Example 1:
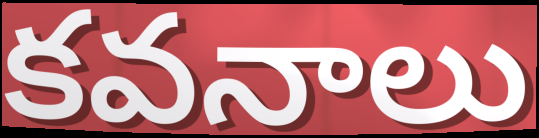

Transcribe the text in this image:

కవనాలు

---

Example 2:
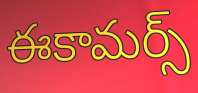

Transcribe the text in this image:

ఈకామర్స్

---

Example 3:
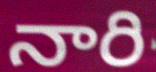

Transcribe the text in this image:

నారి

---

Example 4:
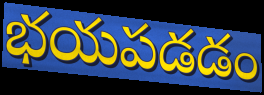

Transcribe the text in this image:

భయపడడం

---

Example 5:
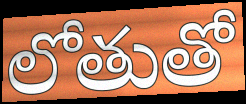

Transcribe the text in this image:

లోతుతో